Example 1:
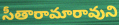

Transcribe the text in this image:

సీతారామారావుని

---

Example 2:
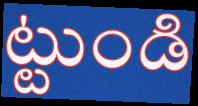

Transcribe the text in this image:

ట్టుండి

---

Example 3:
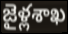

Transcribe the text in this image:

జైళ్లశాఖ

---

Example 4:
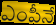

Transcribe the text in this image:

ఎంపీనే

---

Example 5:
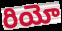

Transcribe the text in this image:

రియో